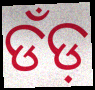
ଡଁଡ଼